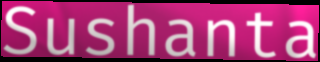
Sushanta